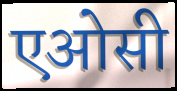
एओसी